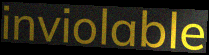
inviolable